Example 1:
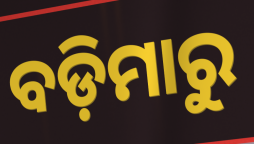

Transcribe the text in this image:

ବଡ଼ିମାରୁ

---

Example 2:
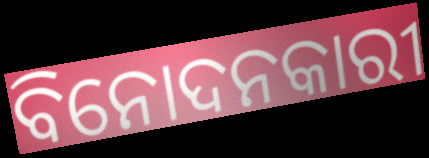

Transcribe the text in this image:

ବିନୋଦନକାରୀ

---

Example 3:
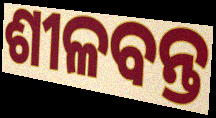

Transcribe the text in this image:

ଶୀଳବନ୍ତ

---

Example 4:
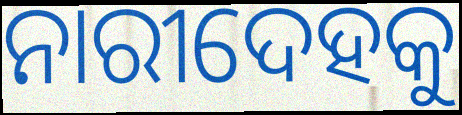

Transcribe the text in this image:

ନାରୀଦେହକୁ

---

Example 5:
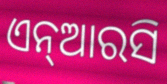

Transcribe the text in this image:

ଏନ୍ଆରସି